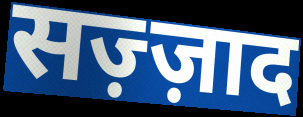
सज़्ज़ाद